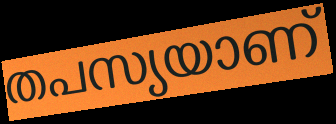
തപസ്യയാണ്